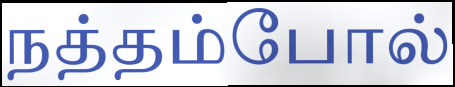
நத்தம்போல்